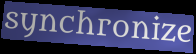
synchronize